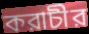
করাচীর